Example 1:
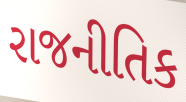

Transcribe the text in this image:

રાજનીતિક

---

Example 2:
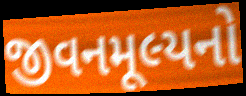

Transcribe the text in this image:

જીવનમૂલ્યનો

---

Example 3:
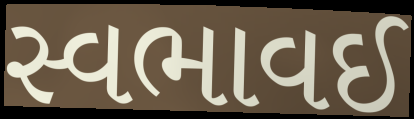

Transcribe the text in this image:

સ્વભાવઈ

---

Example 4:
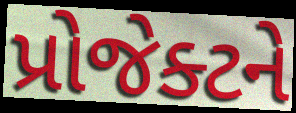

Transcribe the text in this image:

પ્રોજેક્ટને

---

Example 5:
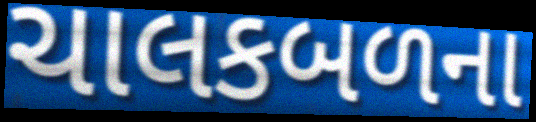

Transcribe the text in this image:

ચાલકબળના